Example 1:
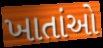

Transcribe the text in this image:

ખાતાંઓ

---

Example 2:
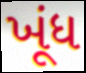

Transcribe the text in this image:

ખૂંધ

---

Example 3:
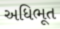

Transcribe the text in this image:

અધિભૂત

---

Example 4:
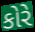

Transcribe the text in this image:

કોરે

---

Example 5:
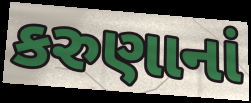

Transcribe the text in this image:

કરુણાનાં